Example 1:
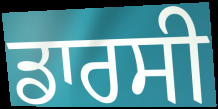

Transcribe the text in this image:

ਡਾਰਸੀ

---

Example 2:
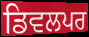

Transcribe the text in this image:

ਡਿਵਲਪਰ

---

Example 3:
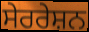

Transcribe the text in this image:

ਸੇਰਰੇਸ਼ਨ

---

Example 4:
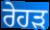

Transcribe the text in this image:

ਰੇਹੜ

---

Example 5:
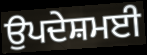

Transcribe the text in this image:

ਉਪਦੇਸ਼ਮਈ